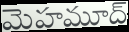
మెహమూద్